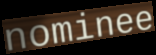
nominee